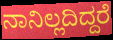
ನಾನಿಲ್ಲದಿದ್ದರೆ